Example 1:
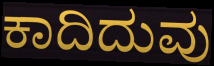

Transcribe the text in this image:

ಕಾದಿದುವು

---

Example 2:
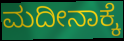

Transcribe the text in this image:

ಮದೀನಾಕ್ಕೆ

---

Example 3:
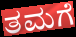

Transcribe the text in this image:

ತಮಗೆ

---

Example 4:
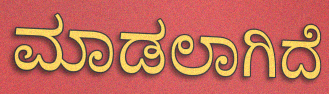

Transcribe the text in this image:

ಮಾಡಲಾಗಿದೆ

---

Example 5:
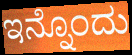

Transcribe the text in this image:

ಇನ್ನೊಂದು